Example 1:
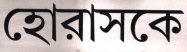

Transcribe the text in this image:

হোরাসকে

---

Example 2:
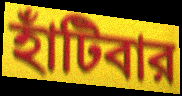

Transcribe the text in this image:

হাঁটিবার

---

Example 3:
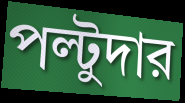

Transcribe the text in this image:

পল্টুদার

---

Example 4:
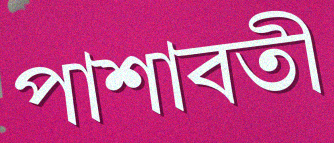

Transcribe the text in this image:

পাশাবতী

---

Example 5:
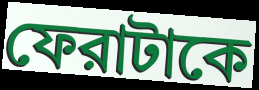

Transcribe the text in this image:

ফেরাটাকে